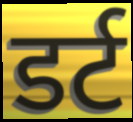
डर्ट